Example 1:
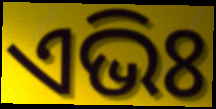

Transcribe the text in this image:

ଏଭିଃ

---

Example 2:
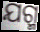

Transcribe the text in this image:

ଯଗ୍ମ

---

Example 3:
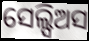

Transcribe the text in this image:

ସେଲ୍ସିଅସ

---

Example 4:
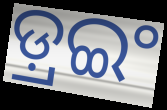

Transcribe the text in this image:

ଡ଼୍ରଇଂ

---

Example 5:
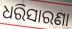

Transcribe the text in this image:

ଧରିସାରଣା